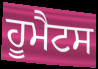
ਹੂਮੈਟਸ